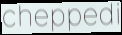
cheppedi